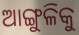
ଆଙ୍ଗୁଳିକୁ